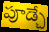
పూడ్చే